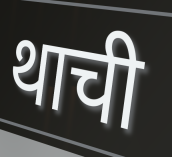
थाची